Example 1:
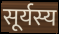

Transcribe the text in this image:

सूर्यस्य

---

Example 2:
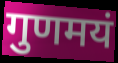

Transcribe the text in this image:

गुणमयं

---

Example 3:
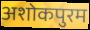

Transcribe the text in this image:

अशोकपुरम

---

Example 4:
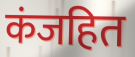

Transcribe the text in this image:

कंजहित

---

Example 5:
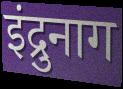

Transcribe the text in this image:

इंद्रुनाग